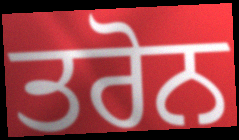
ਤਰੋਨ